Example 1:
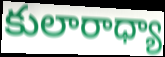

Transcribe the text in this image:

కులారాధ్యా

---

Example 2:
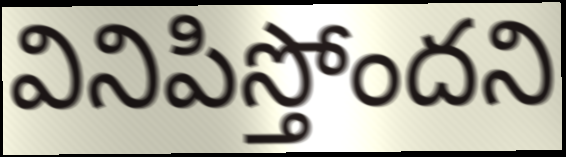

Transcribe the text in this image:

వినిపిస్తోందని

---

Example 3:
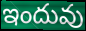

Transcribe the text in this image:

ఇందువు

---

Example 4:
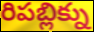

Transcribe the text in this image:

రిపబ్లిక్ను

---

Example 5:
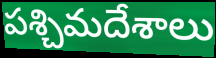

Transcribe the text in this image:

పశ్చిమదేశాలు